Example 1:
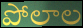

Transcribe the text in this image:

పోలాల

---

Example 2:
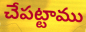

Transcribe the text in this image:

చేపట్టాము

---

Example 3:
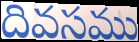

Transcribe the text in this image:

దివసము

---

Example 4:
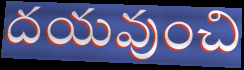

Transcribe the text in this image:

దయవుంచి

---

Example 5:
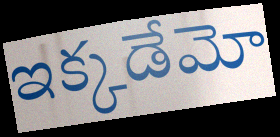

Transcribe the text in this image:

ఇక్కడేమో